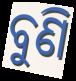
ବୁଣି